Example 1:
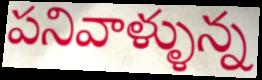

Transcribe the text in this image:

పనివాళ్ళున్న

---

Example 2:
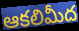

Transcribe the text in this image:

ఆకలిమీద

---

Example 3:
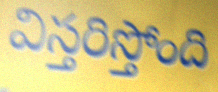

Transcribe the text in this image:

విస్తరిస్తోంది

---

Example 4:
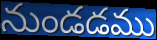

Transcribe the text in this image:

నుండడము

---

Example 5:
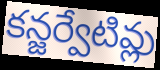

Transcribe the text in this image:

కన్జర్వేటివ్లు